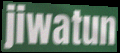
jiwatun